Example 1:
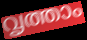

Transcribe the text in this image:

വൃത്താം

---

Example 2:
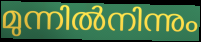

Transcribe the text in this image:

മുന്നിൽനിന്നും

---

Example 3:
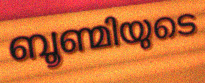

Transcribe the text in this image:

ബൂണ്മിയുടെ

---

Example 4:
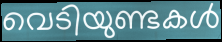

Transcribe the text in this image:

വെടിയുണ്ടകൾ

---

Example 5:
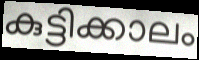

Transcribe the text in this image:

കുട്ടിക്കാലം